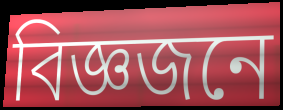
বিজ্ঞজনে